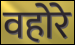
वहोरे